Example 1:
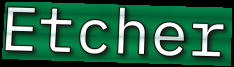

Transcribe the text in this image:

Etcher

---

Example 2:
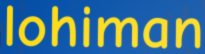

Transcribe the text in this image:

lohiman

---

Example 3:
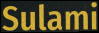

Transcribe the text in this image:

Sulami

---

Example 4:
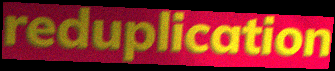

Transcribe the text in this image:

reduplication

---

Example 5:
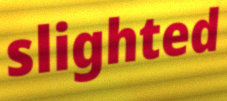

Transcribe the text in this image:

slighted